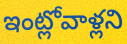
ఇంట్లోవాళ్లని